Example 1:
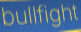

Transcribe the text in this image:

bullfight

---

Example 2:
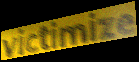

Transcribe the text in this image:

victimize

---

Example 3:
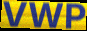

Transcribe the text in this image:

VWP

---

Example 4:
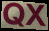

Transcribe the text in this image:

QX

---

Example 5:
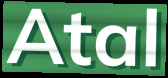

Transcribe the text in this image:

Atal